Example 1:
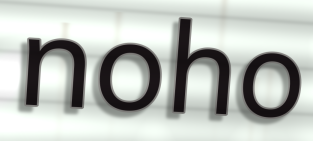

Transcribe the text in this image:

noho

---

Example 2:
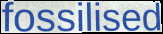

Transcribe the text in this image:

fossilised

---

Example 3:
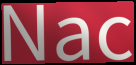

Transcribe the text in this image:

Nac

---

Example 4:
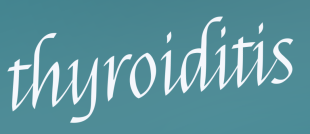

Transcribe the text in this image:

thyroiditis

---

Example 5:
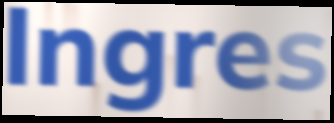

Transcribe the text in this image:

Ingres